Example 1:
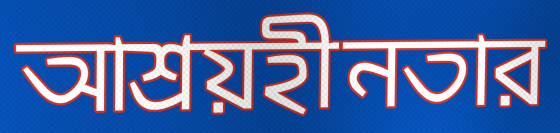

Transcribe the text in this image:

আশ্রয়হীনতার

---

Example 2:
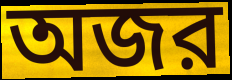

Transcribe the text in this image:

অজর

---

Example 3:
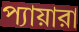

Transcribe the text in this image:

প্যায়ারা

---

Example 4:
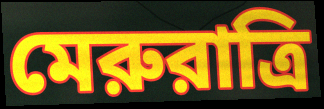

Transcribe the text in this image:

মেরুরাত্রি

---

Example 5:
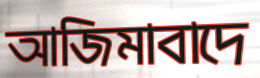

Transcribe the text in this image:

আজিমাবাদে